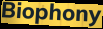
Biophony